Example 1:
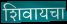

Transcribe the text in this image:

शिवायचा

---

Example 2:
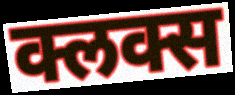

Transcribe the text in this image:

क्लक्स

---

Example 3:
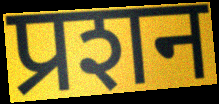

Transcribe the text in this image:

प्रशन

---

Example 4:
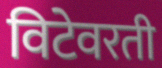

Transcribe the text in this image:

विटेवरती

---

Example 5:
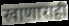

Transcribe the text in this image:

खाणाराही